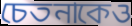
চেতনাকেও